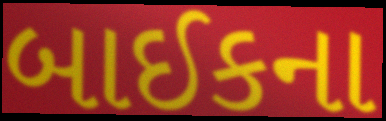
બાઈકના